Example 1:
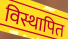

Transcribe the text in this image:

विस्थापित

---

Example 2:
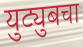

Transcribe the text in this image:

युट्युबचा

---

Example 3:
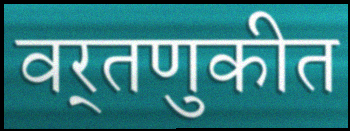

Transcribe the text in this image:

वर्तणुकीत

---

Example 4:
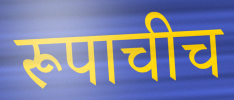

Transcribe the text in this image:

रूपाचीच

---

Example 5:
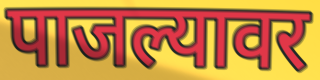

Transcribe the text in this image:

पाजल्यावर